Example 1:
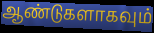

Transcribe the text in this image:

ஆண்டுகளாகவும்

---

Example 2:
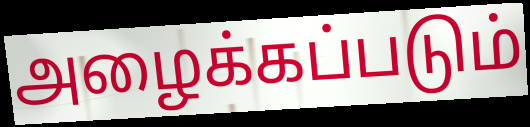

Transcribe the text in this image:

அழைக்கப்படும்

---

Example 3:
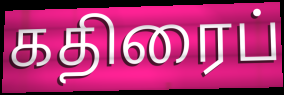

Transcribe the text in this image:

கதிரைப்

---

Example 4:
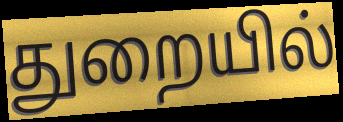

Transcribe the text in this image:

துறையில்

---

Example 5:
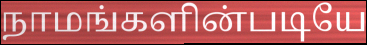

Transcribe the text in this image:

நாமங்களின்படியே